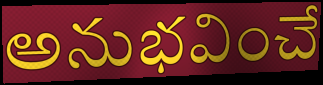
అనుభవించే